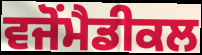
ਵਜੋਂਮੈਡੀਕਲ